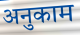
अनुकाम